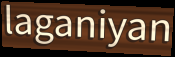
laganiyan